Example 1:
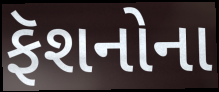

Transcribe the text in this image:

ફૅશનોના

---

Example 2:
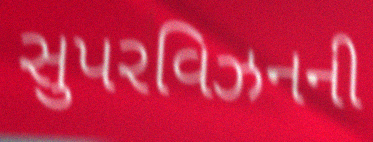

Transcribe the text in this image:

સુપરવિઝનની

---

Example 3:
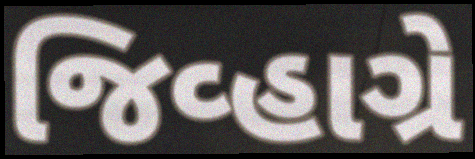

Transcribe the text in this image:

જિવ્હાગ્રે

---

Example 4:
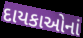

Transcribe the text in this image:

દાયકાઓનાં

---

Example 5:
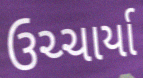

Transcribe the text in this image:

ઉચ્ચાર્યા